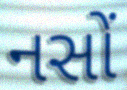
નસોં